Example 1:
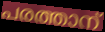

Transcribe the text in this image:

പരത്താന്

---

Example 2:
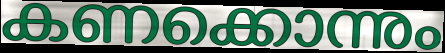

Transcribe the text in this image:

കണക്കൊന്നും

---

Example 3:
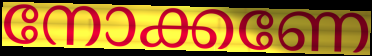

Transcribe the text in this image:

നോക്കണേ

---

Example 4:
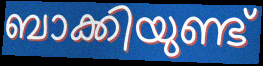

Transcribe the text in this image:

ബാക്കിയുണ്ട്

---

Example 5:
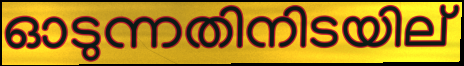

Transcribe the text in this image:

ഓടുന്നതിനിടയില്